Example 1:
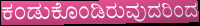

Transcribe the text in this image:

ಕಂಡುಕೊಂಡಿರುವುದರಿಂದ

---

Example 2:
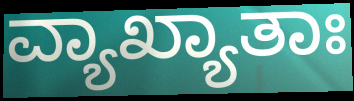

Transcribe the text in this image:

ವ್ಯಾಖ್ಯಾತಾಃ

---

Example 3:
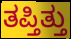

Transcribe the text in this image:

ತಪ್ತಿತ್ತು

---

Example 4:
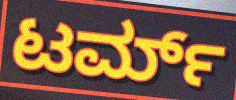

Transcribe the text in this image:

ಟರ್ಮ್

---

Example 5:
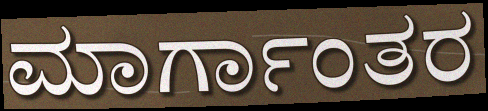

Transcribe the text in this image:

ಮಾರ್ಗಾಂತರ